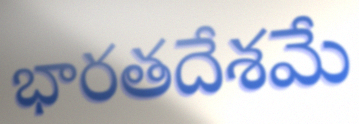
భారతదేశమే